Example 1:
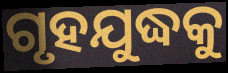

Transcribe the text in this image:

ଗୃହଯୁଦ୍ଧକୁ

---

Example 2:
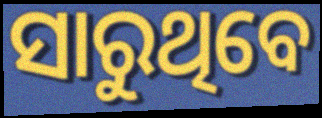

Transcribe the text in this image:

ସାରୁଥିବେ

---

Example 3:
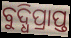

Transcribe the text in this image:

ବୁଦ୍ଧିପ୍ରାପ୍ତ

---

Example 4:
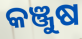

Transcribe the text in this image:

କଞ୍ଜୁଷ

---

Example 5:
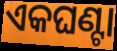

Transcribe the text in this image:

ଏକଘଣ୍ଟା